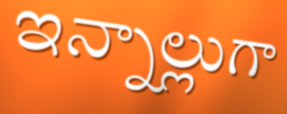
ఇన్నాల్లుగా